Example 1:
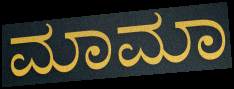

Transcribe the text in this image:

ಮಾಮಾ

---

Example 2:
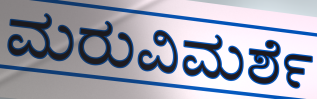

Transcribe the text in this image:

ಮರುವಿಮರ್ಶೆ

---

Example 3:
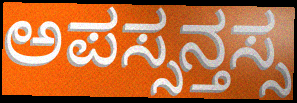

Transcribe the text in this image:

ಅಪಸ್ಸನ್ತಸ್ಸ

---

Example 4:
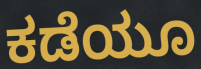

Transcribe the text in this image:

ಕಡೆಯೂ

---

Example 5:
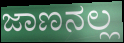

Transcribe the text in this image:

ಜಾಣನಲ್ಲ